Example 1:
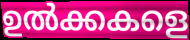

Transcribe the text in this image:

ഉൽക്കകളെ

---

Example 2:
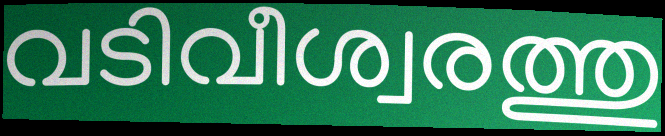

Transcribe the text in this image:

വടിവീശ്വരത്തു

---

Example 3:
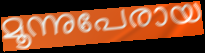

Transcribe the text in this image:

മൂന്നുപേരായ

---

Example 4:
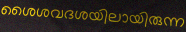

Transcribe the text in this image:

ശൈശവദശയിലായിരുന്ന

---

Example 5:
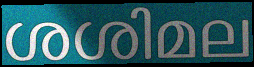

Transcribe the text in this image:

ശശിമല